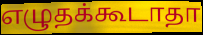
எழுதக்கூடாதா